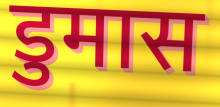
डुमास